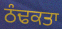
ਠੰਢਕਤਾ